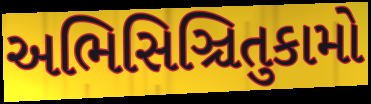
અભિસિઞ્ચિતુકામો